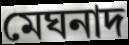
মেঘনাদ